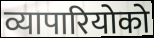
व्यापारियोको